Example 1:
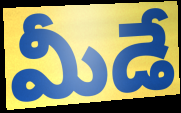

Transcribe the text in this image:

మీడే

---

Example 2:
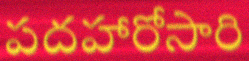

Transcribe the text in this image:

పదహారోసారి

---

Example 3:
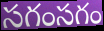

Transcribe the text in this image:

సగంసగం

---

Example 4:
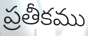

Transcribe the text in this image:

ప్రతీకము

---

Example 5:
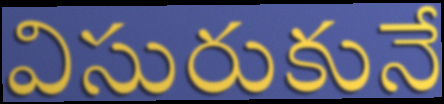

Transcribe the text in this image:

విసురుకునే